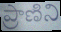
ప్రాణిని